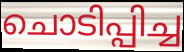
ചൊടിപ്പിച്ച